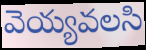
వెయ్యవలసి